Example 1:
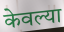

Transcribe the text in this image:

केवल्या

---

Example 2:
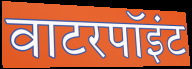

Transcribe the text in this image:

वाटरपॉइंट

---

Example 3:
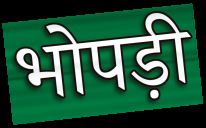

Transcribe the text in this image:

भोपड़ी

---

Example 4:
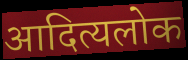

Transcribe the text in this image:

आदित्यलोक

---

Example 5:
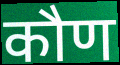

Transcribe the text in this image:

कौण